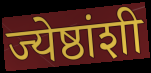
ज्येष्ठांशी